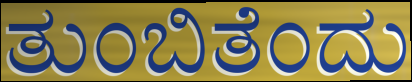
ತುಂಬಿತೆಂದು